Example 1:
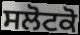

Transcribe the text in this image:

ਸਲੋਟਕੋ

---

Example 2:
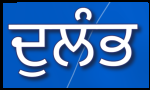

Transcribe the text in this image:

ਦੁਲੰਭ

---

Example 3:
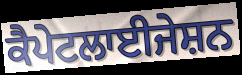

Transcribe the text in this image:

ਕੈਪੇਟਲਾਈਜੇਸ਼ਨ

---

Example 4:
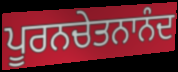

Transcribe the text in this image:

ਪੂਰਨਚੇਤਨਾਨੰਦ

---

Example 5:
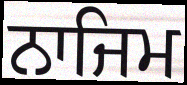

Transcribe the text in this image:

ਨਾਜਿਮ